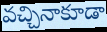
వచ్చినాకూడా